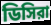
ডিসিরা